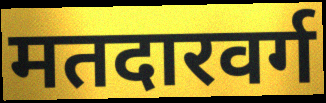
मतदारवर्ग